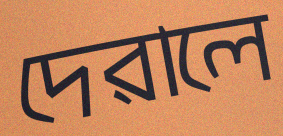
দেৱালে